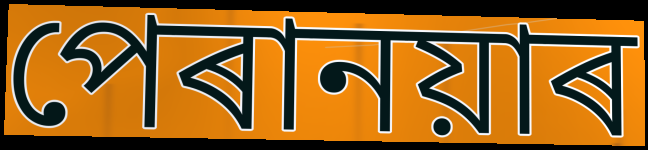
পেৰানয়াৰ